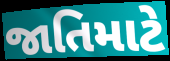
જાતિમાટે